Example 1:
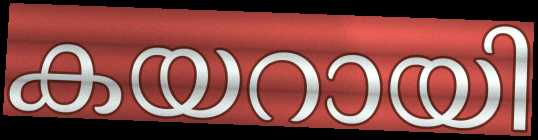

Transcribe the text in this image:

കയറായി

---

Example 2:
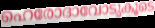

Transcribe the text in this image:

ഹെരോദാവോടുകൂടെ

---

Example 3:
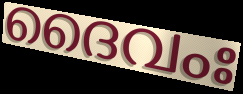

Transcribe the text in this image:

ദൈവംഃ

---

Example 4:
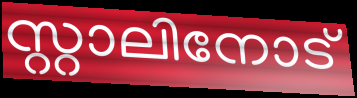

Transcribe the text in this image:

സ്റ്റാലിനോട്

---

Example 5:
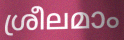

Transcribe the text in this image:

ശ്രീലമാം